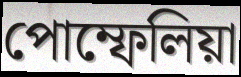
পোম্ফেলিয়া